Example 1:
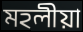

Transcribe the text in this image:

মহলীয়া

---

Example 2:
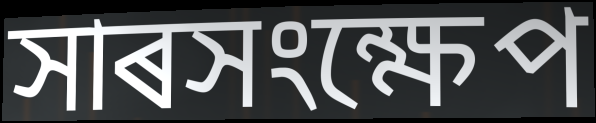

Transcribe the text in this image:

সাৰসংক্ষেপ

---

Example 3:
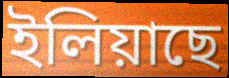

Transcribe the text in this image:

ইলিয়াছে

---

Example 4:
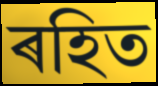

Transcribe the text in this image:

ৰহিত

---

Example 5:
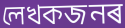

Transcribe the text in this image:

লেখকজনৰ